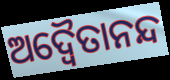
ଅଦ୍ଵୈତାନନ୍ଦ